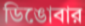
ডিঙোবার